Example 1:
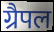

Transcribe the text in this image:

ग्रैपल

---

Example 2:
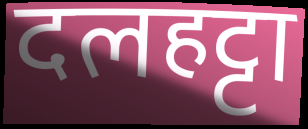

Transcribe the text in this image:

दलहट्टा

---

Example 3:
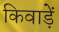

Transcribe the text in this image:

किवाड़ें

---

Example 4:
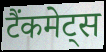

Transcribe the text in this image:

टैंकमेट्स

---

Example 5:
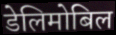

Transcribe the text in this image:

डेलिमोबिल